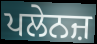
ਪਲੇਨਜ਼